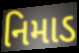
નિમાડ